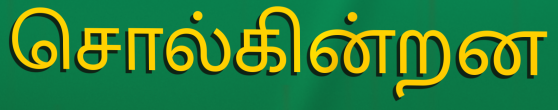
சொல்கின்றன